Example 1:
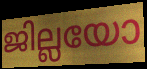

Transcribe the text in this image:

ജില്ലയോ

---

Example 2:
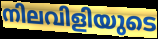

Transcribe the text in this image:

നിലവിളിയുടെ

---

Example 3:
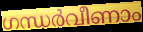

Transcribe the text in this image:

ഗന്ധർവീണാം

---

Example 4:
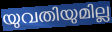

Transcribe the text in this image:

യുവതിയുമില്ല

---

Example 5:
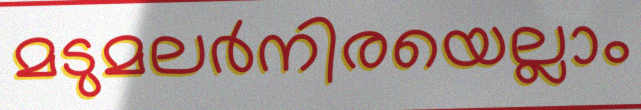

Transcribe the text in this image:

മടുമലർനിരയെല്ലാം